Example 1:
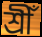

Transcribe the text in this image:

শ্ৰীঁ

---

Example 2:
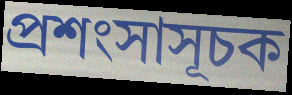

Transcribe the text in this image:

প্ৰশংসাসূচক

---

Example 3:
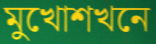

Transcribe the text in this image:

মুখোশখনে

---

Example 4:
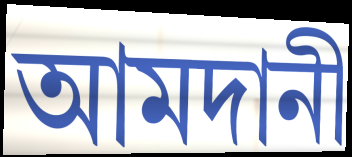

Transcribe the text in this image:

আমদানী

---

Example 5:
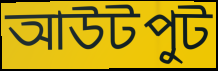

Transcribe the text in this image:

আউটপুট